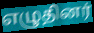
எழுதினர்